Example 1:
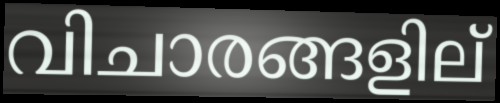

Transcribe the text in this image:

വിചാരങ്ങളില്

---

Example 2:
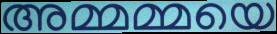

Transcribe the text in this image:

അമ്മമ്മയെ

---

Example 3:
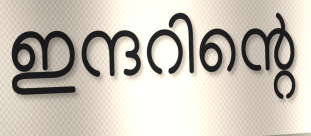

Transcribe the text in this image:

ഇന്ദറിന്റെ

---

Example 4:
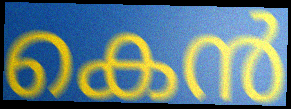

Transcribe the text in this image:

കെൻ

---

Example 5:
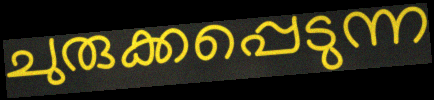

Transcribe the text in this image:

ചുരുക്കപ്പെടുന്ന